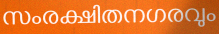
സംരക്ഷിതനഗരവും